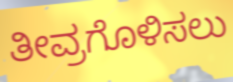
ತೀವ್ರಗೊಳಿಸಲು